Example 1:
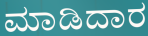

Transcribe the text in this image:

ಮಾಡಿದಾರ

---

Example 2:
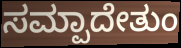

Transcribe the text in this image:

ಸಮ್ಪಾದೇತುಂ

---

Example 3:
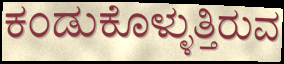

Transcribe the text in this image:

ಕಂಡುಕೊಳ್ಳುತ್ತಿರುವ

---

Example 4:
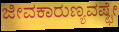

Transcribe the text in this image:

ಜೀವಕಾರುಣ್ಯವಷ್ಟೇ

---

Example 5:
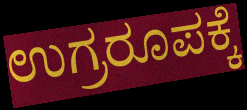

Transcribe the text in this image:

ಉಗ್ರರೂಪಕ್ಕೆ